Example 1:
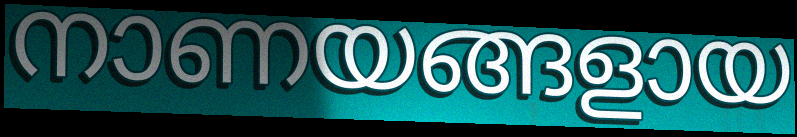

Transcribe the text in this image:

നാണയങ്ങളായ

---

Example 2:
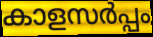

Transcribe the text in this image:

കാളസർപ്പം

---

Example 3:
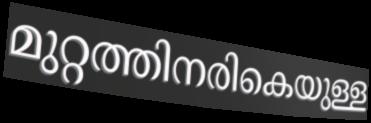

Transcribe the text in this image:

മുറ്റത്തിനരികെയുള്ള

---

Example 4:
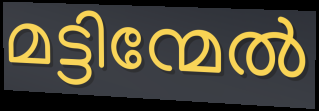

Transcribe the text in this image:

മട്ടിന്മേൽ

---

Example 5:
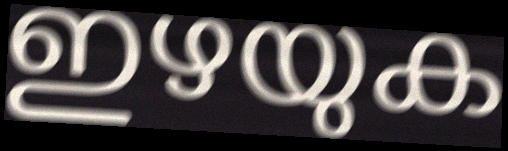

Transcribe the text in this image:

ഇഴയുക